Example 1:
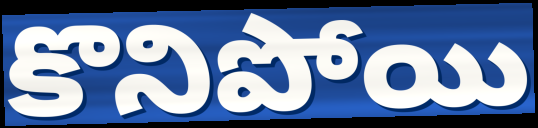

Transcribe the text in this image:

కొనిపోయి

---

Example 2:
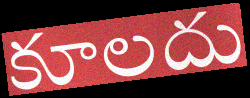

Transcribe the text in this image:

కూలదు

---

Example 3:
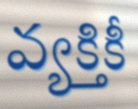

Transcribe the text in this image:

వ్యక్తికీ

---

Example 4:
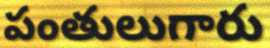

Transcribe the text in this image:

పంతులుగారు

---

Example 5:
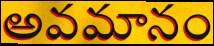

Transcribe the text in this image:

అవమానం